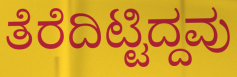
ತೆರೆದಿಟ್ಟಿದ್ದವು